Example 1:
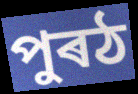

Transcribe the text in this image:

পুৰঠ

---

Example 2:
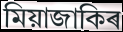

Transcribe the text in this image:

মিয়াজাকিৰ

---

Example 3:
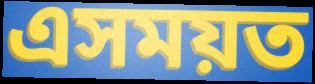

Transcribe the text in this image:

এসময়ত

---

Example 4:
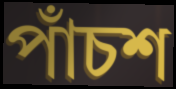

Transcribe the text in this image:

পাঁচশ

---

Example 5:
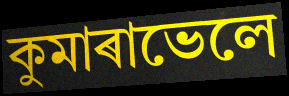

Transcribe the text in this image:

কুমাৰাভেলে